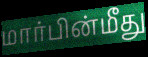
மார்பின்மீது